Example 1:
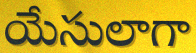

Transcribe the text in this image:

యేసులాగా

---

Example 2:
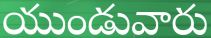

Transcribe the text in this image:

యుండువారు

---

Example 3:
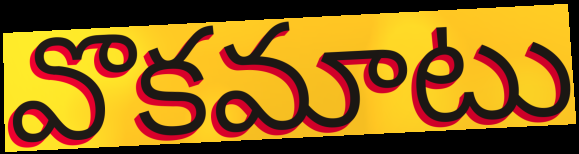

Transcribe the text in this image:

వొకమాటు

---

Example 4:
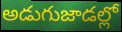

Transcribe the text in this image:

అడుగుజాడల్లో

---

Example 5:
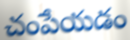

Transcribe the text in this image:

చంపేయడం